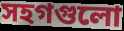
সহগগুলো